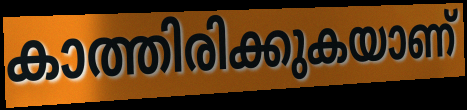
കാത്തിരിക്കുകയാണ്